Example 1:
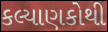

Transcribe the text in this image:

કલ્યાણકોથી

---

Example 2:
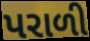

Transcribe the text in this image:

પરાળી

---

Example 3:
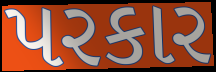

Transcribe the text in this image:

પરકાર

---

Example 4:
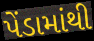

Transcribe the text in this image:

પેંડામાંથી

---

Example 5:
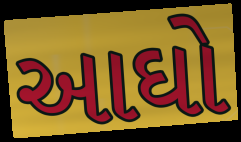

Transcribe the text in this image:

આઘો